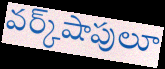
వర్క్‌షాపులూ